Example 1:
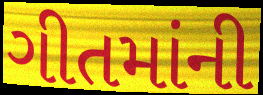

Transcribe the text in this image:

ગીતમાંની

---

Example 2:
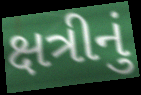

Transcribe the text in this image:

ક્ષત્રીનું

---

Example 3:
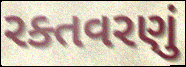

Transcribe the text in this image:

રક્તવરણું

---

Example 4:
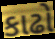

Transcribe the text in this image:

કાઢો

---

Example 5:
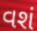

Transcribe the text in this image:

વશં